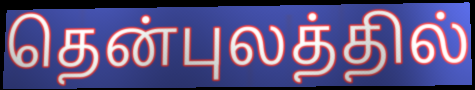
தென்புலத்தில்